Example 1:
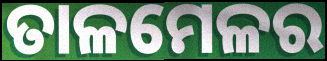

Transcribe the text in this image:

ତାଳମେଳର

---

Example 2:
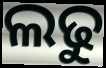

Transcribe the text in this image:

ଲଢୁ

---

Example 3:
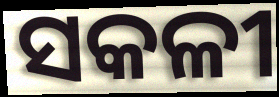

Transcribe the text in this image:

ସକଳୀ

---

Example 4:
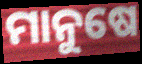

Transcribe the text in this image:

ମାନୁଷେ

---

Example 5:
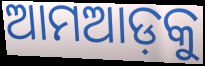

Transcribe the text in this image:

ଆମଆଡ଼କୁ